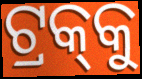
ଟ୍ରକ୍‍କୁ